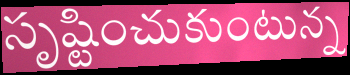
సృష్టించుకుంటున్న